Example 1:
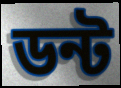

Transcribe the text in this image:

ডন্ট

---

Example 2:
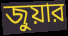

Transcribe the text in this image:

জুয়ার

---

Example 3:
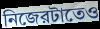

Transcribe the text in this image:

নিজেরটাতেও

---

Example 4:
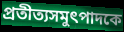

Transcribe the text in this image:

প্রতীত্যসমুৎপাদকে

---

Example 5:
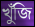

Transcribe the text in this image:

খুঁজি